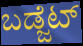
ಬಡ್ಜೆಟ್